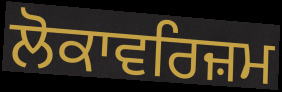
ਲੋਕਾਵਰਿਜ਼ਮ